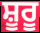
ਸ਼ੂਰੂ